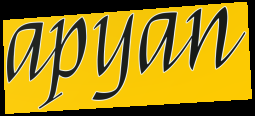
apyan